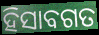
ହିସାବଗତ